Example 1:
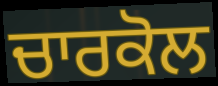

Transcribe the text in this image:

ਚਾਰਕੋਲ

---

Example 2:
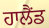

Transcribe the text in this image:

ਹਾਲੈਂਡ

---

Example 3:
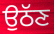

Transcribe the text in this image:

ਉਠੱਣ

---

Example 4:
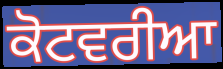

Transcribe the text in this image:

ਕੋਟਵਰੀਆ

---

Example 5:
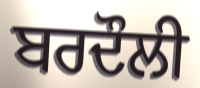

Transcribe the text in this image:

ਬਰਦੌਲੀ